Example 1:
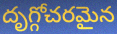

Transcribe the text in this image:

దృగ్గోచరమైన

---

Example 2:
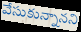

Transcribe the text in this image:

వేసుకున్నానని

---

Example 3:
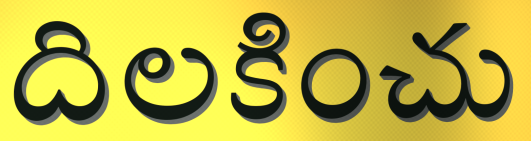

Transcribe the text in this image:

దిలకించు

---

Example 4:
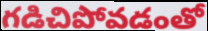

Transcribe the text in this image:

గడిచిపోవడంతో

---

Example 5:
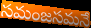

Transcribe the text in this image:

సమంజసమనే